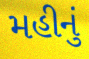
મહીનું